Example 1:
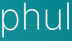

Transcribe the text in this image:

phul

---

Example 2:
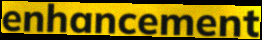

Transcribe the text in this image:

enhancement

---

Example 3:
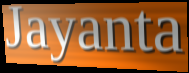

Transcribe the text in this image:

Jayanta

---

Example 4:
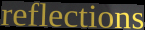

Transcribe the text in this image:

reflections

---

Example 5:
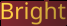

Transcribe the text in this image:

Bright